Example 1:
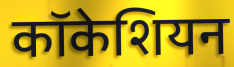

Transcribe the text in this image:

कॉकेशियन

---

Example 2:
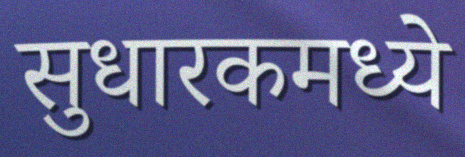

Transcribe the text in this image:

सुधारकमध्ये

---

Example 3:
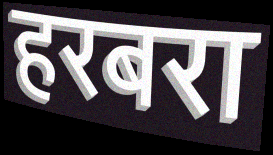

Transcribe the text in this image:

हरबरा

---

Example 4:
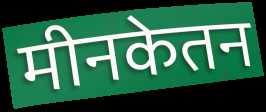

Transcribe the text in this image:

मीनकेतन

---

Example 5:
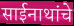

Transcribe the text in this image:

साईनाथांचे